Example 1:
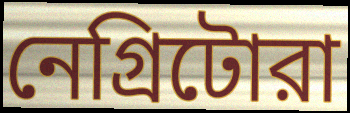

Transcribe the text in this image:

নেগ্রিটোরা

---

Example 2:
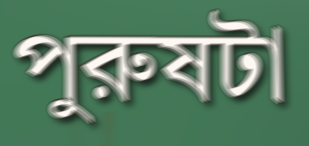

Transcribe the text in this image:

পুরুষটা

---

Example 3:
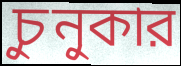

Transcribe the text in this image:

চুনুকার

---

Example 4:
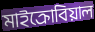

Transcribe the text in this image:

মাইক্রোবিয়াল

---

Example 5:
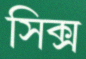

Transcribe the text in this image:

সিক্স